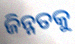
ଜିନ୍ନତକୁ